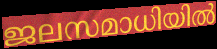
ജലസമാധിയിൽ